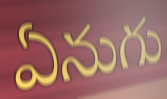
ఏనుగు